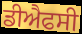
ਡੀਐਫਸੀ